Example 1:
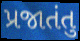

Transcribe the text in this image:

પ્રજાતંતુ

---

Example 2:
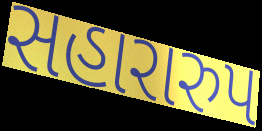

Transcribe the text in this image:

સહારારુપ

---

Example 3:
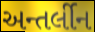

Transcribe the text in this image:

અન્તર્લીન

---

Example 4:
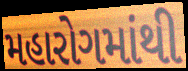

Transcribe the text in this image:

મહારોગમાંથી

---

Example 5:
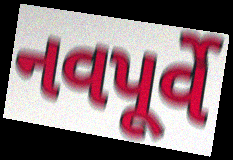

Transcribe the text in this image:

નવપૂર્વે